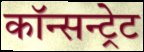
कॉन्सन्ट्रेट